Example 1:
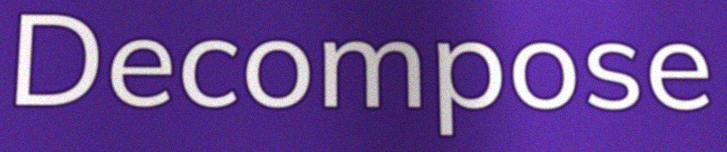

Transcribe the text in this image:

Decompose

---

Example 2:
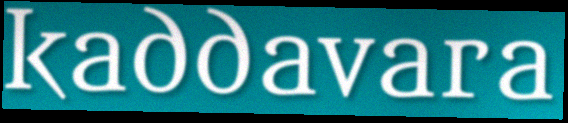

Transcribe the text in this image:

kaddavara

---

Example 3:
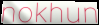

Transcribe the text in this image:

nokhun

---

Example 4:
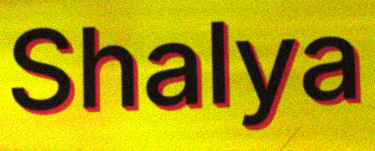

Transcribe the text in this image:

Shalya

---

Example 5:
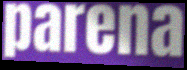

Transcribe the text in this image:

parena